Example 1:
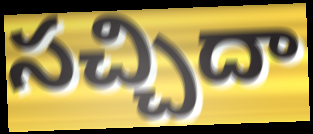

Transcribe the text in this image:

సచ్చిదా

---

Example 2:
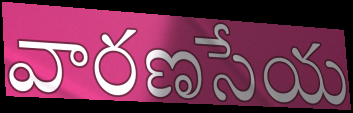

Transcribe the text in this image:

వారణసేయ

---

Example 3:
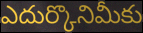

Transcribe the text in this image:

ఎదుర్కొనిమీకు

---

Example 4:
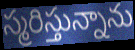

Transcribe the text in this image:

స్మరిస్తున్నాను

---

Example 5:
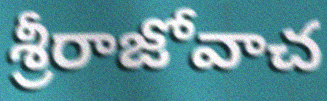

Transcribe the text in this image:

శ్రీరాజోవాచ